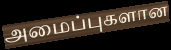
அமைப்புகளான